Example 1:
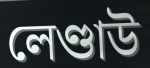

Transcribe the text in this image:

লেণ্ডাউ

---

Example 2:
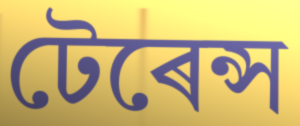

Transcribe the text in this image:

টেৰেন্স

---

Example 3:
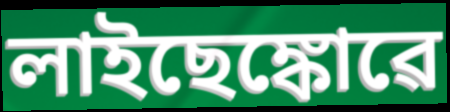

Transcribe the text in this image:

লাইছেঙ্কোৱে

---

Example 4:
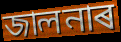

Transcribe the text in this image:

জালনাৰ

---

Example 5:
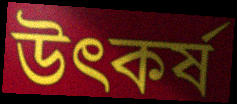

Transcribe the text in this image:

উৎকৰ্ষ